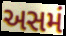
અસમં